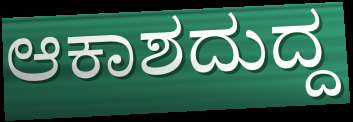
ಆಕಾಶದುದ್ದ